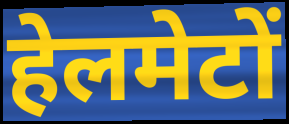
हेलमेटों